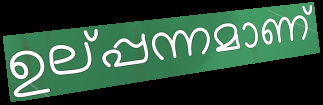
ഉല്പ്പന്നമാണ്